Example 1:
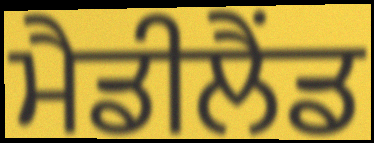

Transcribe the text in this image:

ਮੈਡੀਲੈਂਡ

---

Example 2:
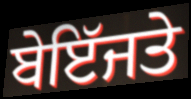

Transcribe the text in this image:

ਬੇਇੱਜਤੇ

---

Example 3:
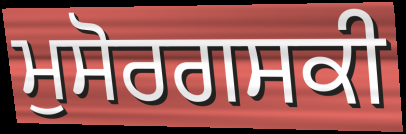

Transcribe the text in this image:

ਮੁਸੋਰਗਸਕੀ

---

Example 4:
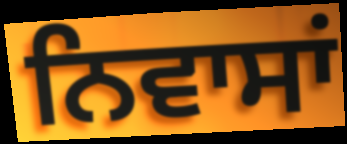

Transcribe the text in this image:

ਨਿਵਾਸਾਂ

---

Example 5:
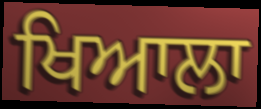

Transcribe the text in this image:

ਖਿਆਲਾ